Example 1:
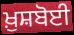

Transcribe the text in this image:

ਖ਼ੁਸ਼ਬੋਈ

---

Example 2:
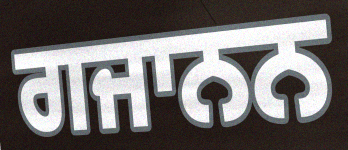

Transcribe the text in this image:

ਗਜਾਨਨ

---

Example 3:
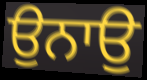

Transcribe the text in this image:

ਉਨਾਉ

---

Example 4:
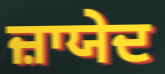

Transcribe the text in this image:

ਜ਼ਾਯੇਦ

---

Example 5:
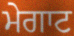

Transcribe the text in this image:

ਮੇਗਾਟ